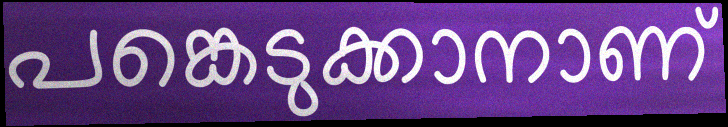
പങ്കെടുക്കാനാണ്